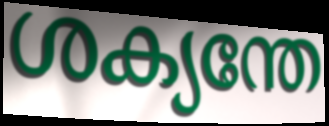
ശക്യന്തേ